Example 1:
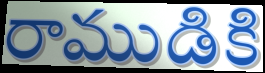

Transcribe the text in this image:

రాముడికి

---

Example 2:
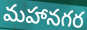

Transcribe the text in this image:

మహానగర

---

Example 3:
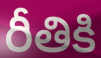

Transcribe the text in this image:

రీతికి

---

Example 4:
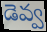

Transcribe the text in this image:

డెవ్వ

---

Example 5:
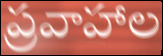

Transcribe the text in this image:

ప్రవాహాల